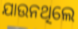
ଯାଉନଥିଲେ